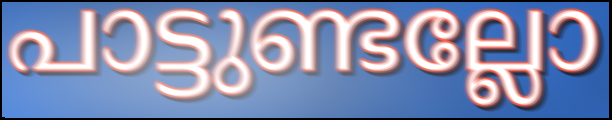
പാട്ടുണ്ടല്ലോ